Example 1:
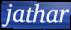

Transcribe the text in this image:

jathar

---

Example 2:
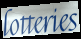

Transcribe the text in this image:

lotteries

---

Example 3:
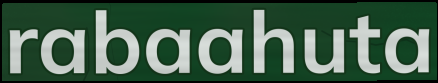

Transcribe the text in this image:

rabaahuta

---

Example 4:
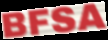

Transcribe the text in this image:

BFSA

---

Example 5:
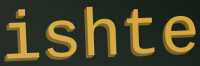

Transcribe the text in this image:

ishte